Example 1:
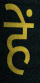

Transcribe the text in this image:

हें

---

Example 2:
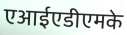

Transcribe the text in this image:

एआईएडीएमके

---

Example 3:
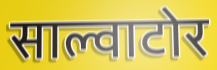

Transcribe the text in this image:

साल्वाटोर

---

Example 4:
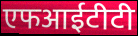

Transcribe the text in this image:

एफआईटीटी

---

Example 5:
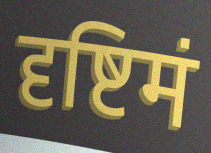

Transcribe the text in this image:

दृष्टिमं